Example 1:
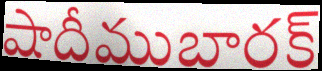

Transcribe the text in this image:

షాదీముబారక్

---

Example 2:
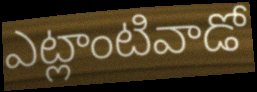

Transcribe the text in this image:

ఎట్లాంటివాడో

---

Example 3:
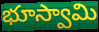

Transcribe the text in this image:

భూస్వామి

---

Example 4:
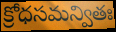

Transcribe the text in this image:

క్రోధసమన్వితః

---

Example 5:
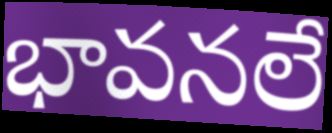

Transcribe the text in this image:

భావనలే